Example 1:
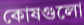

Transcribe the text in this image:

কোষগুলো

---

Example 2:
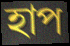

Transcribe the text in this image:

হাপ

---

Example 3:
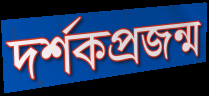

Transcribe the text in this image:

দর্শকপ্রজন্ম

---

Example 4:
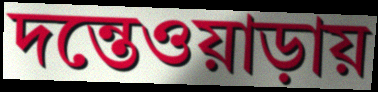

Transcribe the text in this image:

দন্তেওয়াড়ায়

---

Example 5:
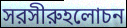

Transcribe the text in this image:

সরসীরুহলোচন